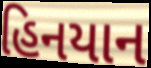
હિનયાન